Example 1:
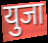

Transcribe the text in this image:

युजा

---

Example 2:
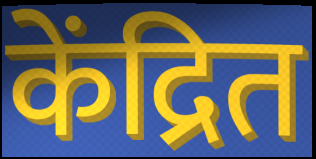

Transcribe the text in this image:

केंद्रित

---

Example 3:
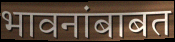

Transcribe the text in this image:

भावनांबाबत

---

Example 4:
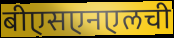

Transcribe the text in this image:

बीएसएनएलची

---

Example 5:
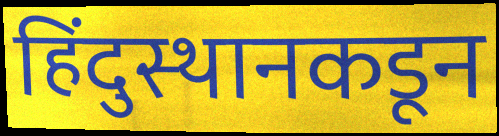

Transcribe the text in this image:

हिंदुस्थानकडून